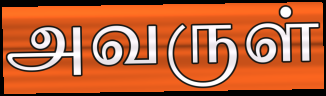
அவருள்